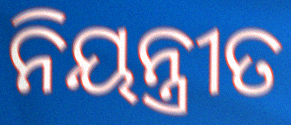
ନିୟନ୍ତ୍ରୀତ